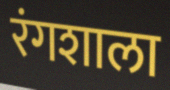
रंगशाला